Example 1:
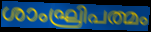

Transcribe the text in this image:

ശാംഘ്രിപത്മം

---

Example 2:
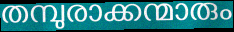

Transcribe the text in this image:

തമ്പുരാക്കന്മാരും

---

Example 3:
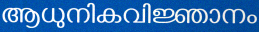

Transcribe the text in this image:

ആധുനികവിജ്ഞാനം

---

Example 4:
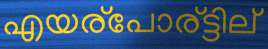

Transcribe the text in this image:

എയര്പോര്ട്ടില്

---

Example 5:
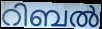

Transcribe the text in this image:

റിബൽ